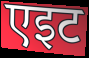
एइट